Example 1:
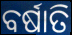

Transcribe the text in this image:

ବର୍ଷାତି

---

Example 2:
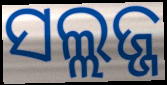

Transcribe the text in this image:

ସଲ୍ଲଜ୍ଜ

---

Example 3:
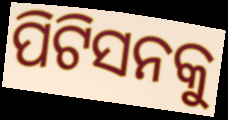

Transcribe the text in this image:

ପିଟିସନକୁ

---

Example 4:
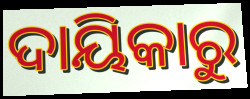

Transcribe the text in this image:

ଦାୟିକାରୁ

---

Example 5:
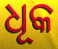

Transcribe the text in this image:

ଧୂକ